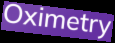
Oximetry